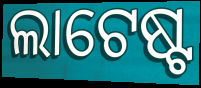
ଲାଟେଷ୍ଟ